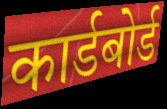
कार्डबोर्ड